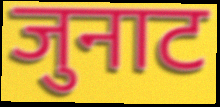
जुनाट